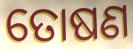
ତୋଷଣ